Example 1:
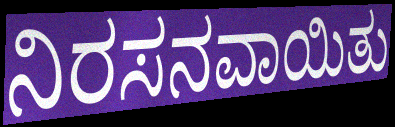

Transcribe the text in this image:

ನಿರಸನವಾಯಿತು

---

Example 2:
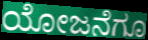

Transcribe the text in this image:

ಯೋಜನೆಗೂ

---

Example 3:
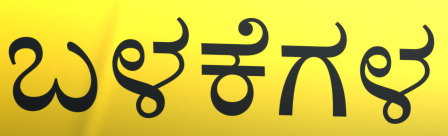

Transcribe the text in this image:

ಬಳಕೆಗಳ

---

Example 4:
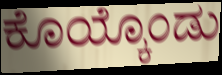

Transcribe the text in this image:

ಕೊಯ್ಕೊಂಡು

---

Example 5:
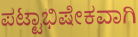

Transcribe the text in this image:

ಪಟ್ಟಾಭಿಷೇಕವಾಗಿ